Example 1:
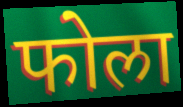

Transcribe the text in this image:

फोला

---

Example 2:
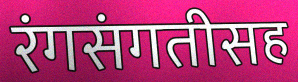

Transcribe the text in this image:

रंगसंगतीसह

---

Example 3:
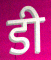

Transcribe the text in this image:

डी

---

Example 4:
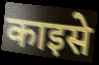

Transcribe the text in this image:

काइसे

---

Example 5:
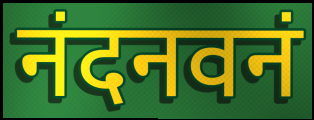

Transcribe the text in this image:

नंदनवनं